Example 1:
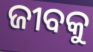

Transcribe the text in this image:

ଜୀବକୁ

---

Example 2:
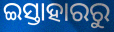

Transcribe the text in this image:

ଇସ୍ତାହାରରୁ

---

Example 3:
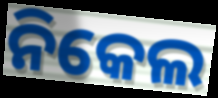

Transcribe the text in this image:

ନିକେଲ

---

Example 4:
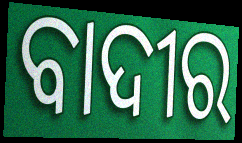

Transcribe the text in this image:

ବାଦୀର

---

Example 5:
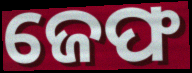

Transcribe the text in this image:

ଜେଫ